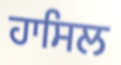
ਹਾਸਿਲ